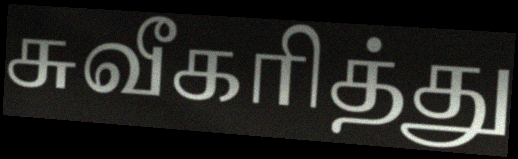
சுவீகரித்து